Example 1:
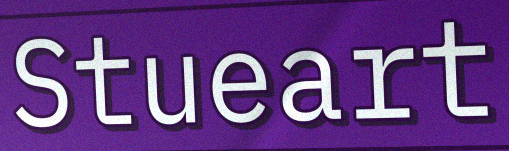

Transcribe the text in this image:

Stueart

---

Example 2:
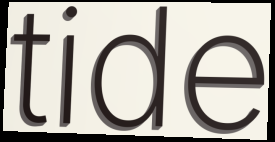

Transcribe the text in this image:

tide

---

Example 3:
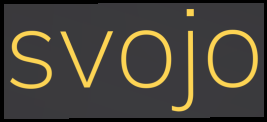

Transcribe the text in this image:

svojo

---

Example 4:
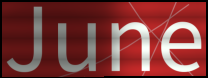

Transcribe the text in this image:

June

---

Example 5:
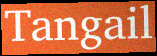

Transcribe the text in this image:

Tangail